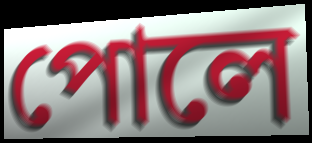
পোলে